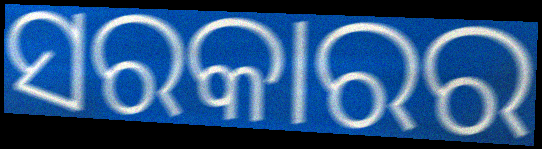
ସରକାରର